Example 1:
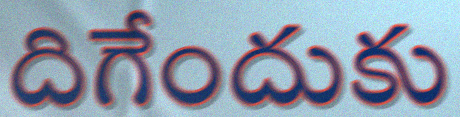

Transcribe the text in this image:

దిగేందుకు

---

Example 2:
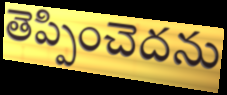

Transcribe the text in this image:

తెప్పించెదను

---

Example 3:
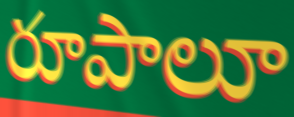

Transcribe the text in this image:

రూపాలూ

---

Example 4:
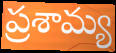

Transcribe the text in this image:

ప్రశామ్య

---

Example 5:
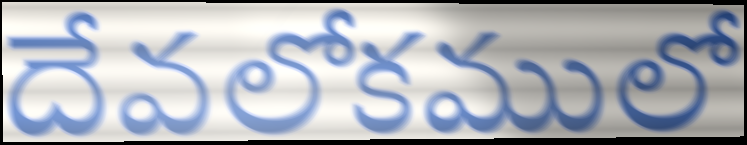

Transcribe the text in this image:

దేవలోకములో